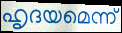
ഹൃദയമെന്ന്